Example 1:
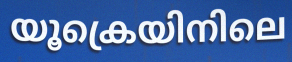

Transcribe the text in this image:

യൂക്രെയിനിലെ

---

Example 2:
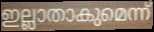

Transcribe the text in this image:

ഇല്ലാതാകുമെന്ന്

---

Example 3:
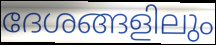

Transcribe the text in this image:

ദേശങ്ങളിലും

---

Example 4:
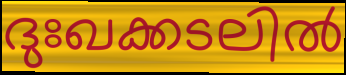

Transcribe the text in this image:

ദുഃഖക്കടലിൽ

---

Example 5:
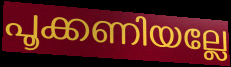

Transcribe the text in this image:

പൂക്കണിയല്ലേ